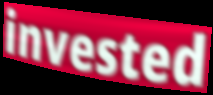
invested